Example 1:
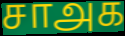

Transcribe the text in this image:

சாஅக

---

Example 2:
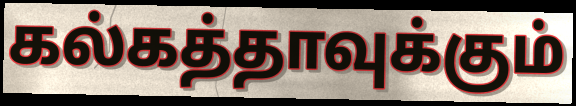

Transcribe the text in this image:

கல்கத்தாவுக்கும்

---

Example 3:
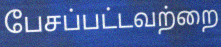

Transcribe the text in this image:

பேசப்பட்டவற்றை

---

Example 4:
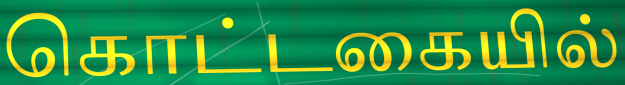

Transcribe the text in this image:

கொட்டகையில்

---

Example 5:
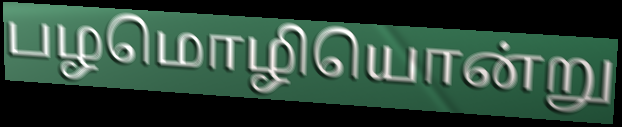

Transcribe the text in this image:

பழமொழியொன்று